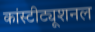
कांस्टीट्यूशनल